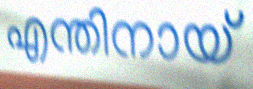
എന്തിനായ്